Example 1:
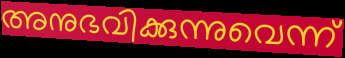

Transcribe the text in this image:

അനുഭവിക്കുന്നുവെന്ന്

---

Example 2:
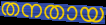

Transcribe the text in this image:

തനതായ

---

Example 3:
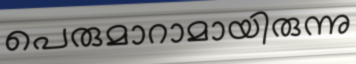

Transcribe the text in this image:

പെരുമാറാമായിരുന്നു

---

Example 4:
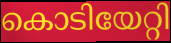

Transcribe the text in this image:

കൊടിയേറ്റി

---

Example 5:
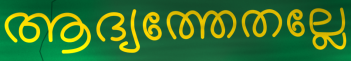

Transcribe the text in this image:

ആദ്യത്തേതല്ലേ